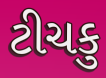
ટીચકુ